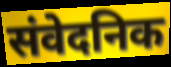
संवेदनिक